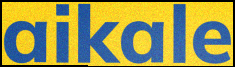
aikale